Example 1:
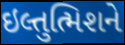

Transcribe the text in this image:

ઇલ્તુત્મિશને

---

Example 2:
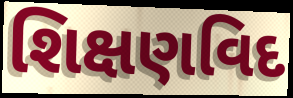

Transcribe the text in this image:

શિક્ષણવિદ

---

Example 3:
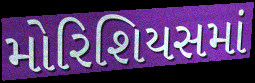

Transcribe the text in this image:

મોરિશિયસમાં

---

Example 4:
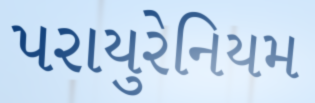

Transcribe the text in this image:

પરાયુરેનિયમ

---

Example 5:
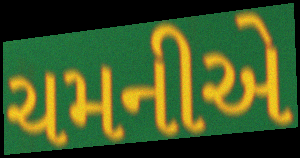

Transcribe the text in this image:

ચમનીએ